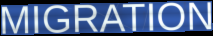
MIGRATION